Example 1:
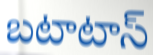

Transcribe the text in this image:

బటాటాస్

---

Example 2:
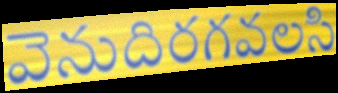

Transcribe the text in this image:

వెనుదిరగవలసి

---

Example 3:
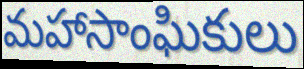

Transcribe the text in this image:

మహాసాంఘికులు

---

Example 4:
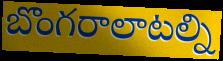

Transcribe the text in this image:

బొంగరాలాటల్ని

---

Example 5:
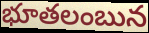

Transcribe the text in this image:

భూతలంబున